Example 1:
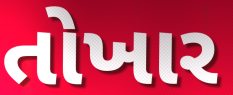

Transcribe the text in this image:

તોખાર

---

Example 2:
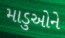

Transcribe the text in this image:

માડુઓને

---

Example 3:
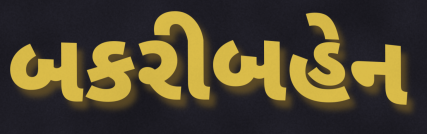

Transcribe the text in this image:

બકરીબહેન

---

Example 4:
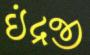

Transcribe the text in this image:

ઇંદ્રજી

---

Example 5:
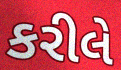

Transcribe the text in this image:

કરીલે